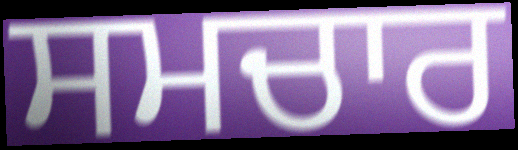
ਸਮਚਾਰ